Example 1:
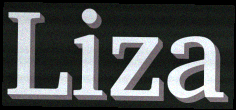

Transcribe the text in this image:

Liza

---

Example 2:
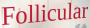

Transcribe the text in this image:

Follicular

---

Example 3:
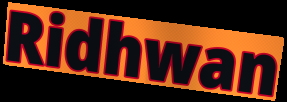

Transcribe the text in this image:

Ridhwan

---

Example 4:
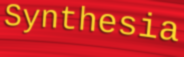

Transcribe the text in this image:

Synthesia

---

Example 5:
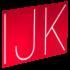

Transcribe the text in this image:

IJK